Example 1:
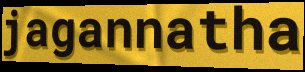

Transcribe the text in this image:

jagannatha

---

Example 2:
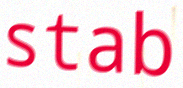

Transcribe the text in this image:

stab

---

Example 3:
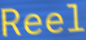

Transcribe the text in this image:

Reel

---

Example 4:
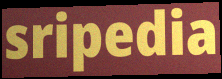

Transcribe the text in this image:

sripedia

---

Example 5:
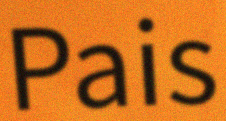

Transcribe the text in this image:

Pais